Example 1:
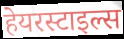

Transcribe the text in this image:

हेयरस्टाइल्स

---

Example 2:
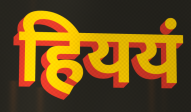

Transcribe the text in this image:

हिययं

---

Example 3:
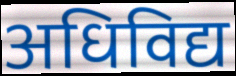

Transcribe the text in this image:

अधिविद्य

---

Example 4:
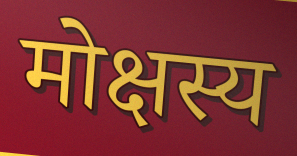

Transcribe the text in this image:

मोक्षस्य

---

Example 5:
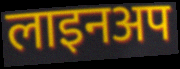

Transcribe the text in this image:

लाइनअप